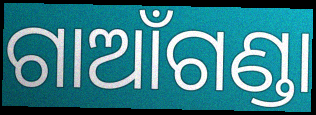
ଗାଆଁଗଣ୍ଡା